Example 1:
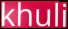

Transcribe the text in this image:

khuli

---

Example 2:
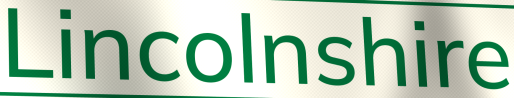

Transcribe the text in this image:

Lincolnshire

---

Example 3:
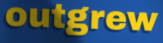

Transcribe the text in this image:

outgrew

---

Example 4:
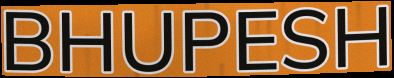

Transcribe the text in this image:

BHUPESH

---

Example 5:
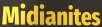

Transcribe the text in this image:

Midianites